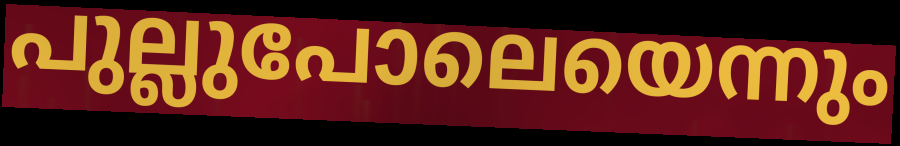
പുല്ലുപോലെയെന്നും